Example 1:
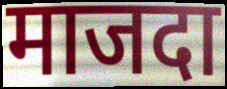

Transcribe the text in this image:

माजदा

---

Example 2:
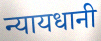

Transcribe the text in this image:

न्यायधानी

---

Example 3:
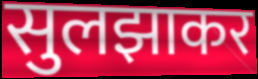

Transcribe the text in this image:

सुलझाकर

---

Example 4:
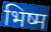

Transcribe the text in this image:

भिष्म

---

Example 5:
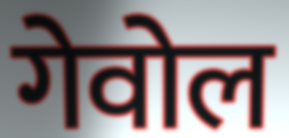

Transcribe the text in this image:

गेवोल